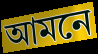
আমনে